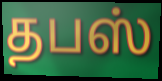
தபஸ்